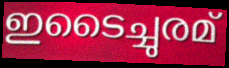
ഇടൈച്ചുരമ്